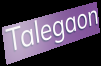
Talegaon